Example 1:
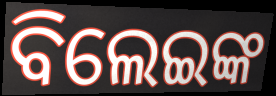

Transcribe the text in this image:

ବିଲେଇଙ୍କ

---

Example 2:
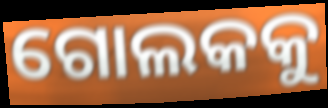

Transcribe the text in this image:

ଗୋଲକକୁ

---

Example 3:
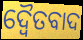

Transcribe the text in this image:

ଦ୍ୱୈତବାଦ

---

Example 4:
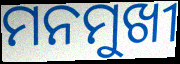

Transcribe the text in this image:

ମନମୁଖୀ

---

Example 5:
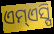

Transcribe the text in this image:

ଏମ୍ଏସ୍ପି